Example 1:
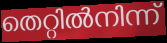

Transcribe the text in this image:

തെറ്റിൽനിന്ന്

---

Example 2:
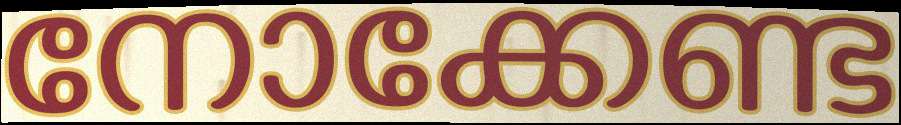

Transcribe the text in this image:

നോക്കേണ്ട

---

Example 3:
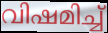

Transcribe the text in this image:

വിഷമിച്ച്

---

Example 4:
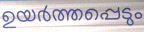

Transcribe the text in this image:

ഉയർത്തപ്പെടും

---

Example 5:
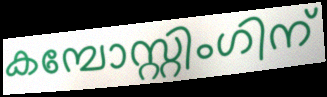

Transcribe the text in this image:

കമ്പോസ്റ്റിംഗിന്